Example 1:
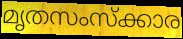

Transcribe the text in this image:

മൃതസംസ്ക്കാര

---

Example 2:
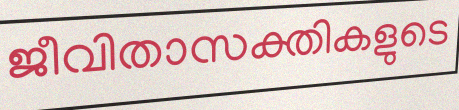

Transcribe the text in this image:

ജീവിതാസക്തികളുടെ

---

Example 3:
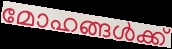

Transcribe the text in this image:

മോഹങ്ങൾക്ക്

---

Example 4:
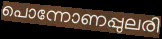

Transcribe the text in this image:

പൊന്നോണപ്പുലരി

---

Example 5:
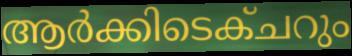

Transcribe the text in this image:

ആർക്കിടെക്ചറും